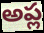
అప్ల